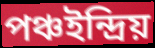
পঞ্চইন্দ্রিয়